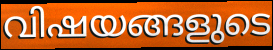
വിഷയങ്ങളുടെ